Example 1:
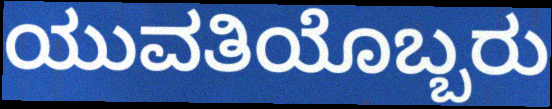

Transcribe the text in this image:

ಯುವತಿಯೊಬ್ಬರು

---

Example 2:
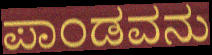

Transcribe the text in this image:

ಪಾಂಡವನು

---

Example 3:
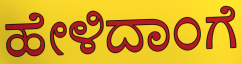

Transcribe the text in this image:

ಹೇಳಿದಾಂಗೆ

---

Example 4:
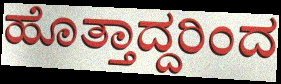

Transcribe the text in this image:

ಹೊತ್ತಾದ್ದರಿಂದ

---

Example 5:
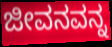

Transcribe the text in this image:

ಜೀವನವನ್ನ